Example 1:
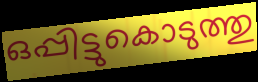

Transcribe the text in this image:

ഒപ്പിട്ടുകൊടുത്തു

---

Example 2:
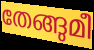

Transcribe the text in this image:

തേങ്ങുമീ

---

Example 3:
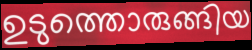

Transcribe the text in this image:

ഉടുത്തൊരുങ്ങിയ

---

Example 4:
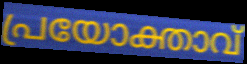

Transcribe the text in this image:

പ്രയോക്താവ്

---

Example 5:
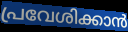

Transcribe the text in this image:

പ്രവേശിക്കാൻ